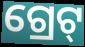
ଗ୍ରେଟ୍